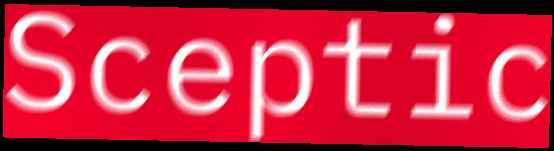
Sceptic